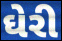
ઘેરી